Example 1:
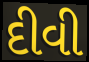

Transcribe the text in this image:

દીવી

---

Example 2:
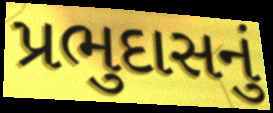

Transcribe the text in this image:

પ્રભુદાસનું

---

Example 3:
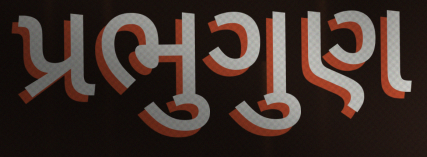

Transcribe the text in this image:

પ્રભુગુણ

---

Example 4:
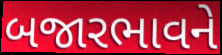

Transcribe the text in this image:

બજારભાવને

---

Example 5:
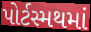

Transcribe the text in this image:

પોર્ટસ્મથમાં